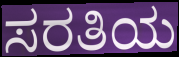
ಸರತಿಯ